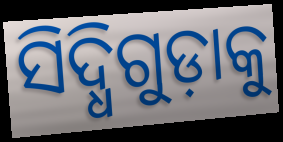
ସିଦ୍ଧିଗୁଡ଼ାକୁ